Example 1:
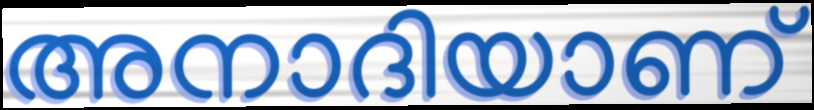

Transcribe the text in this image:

അനാദിയാണ്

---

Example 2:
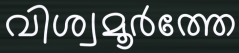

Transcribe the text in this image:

വിശ്വമൂർത്തേ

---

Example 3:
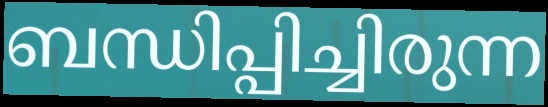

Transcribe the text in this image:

ബന്ധിപ്പിച്ചിരുന്ന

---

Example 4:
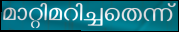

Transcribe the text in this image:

മാറ്റിമറിച്ചതെന്ന്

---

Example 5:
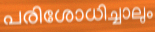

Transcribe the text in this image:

പരിശോധിച്ചാലും